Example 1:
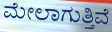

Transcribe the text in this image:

ಮೇಲಾಗುತ್ತಿವೆ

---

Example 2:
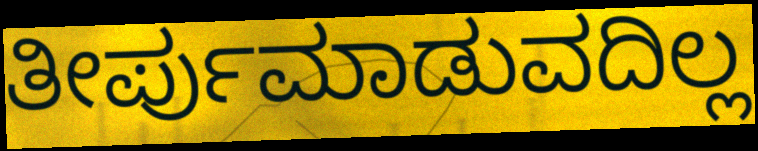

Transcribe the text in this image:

ತೀರ್ಪುಮಾಡುವದಿಲ್ಲ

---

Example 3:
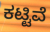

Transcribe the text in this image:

ಕಟ್ಟಿವೆ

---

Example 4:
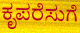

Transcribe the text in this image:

ಕೃಪರೆಸುಗೆ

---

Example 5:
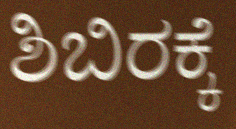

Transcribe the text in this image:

ಶಿಬಿರಕ್ಕೆ